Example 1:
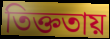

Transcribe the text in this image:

তিক্ততায়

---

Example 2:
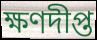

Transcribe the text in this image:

ক্ষণদীপ্ত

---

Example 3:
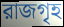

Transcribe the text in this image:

রাজগৃহ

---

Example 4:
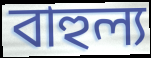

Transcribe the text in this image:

বাহুল্য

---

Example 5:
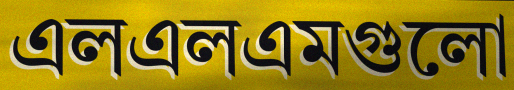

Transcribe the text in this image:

এলএলএমগুলো